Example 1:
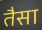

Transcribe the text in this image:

तैसा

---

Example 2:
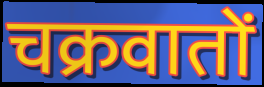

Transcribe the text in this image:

चक्रवातों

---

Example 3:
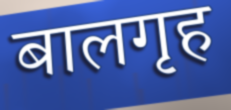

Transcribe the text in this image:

बालगृह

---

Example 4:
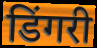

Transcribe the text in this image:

डिंगरी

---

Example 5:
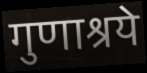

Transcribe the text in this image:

गुणाश्रये